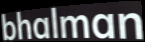
bhalman